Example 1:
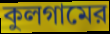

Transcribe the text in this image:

কুলগামের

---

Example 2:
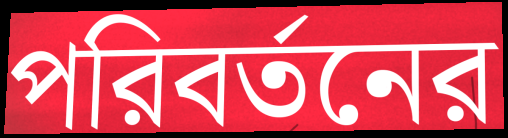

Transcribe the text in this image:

পরিবর্তনের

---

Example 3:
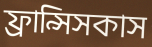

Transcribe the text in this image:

ফ্রান্সিসকাস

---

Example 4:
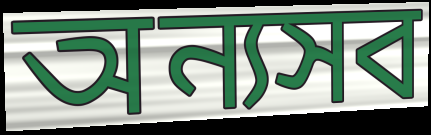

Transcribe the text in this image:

অন্যসব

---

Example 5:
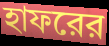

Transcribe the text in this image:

হাফরের